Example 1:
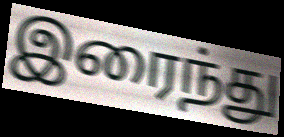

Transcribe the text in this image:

இரைந்து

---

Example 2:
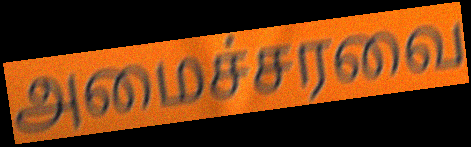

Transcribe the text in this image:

அமைச்சரவை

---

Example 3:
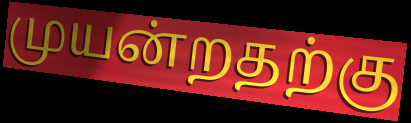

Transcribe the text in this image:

முயன்றதற்கு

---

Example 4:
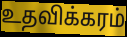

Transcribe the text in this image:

உதவிக்கரம்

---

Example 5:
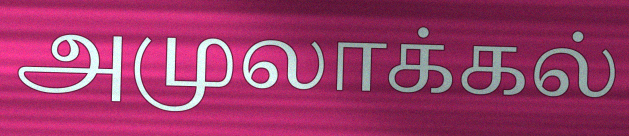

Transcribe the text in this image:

அமுலாக்கல்